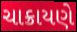
ચાક્રાયણે